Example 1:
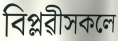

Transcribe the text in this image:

বিপ্লৱীসকলে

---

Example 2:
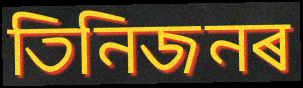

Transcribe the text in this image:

তিনিজনৰ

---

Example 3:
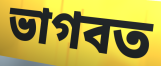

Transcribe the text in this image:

ভাগবত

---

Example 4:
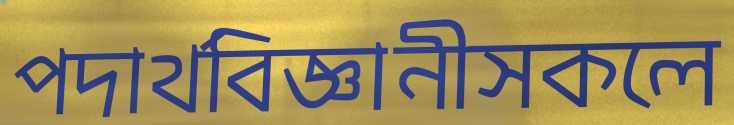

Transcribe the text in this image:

পদাৰ্থবিজ্ঞানীসকলে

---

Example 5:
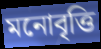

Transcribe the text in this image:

মনোবৃত্তি